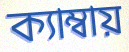
ক্যাম্বায়